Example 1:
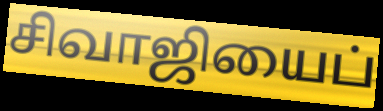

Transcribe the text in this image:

சிவாஜியைப்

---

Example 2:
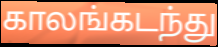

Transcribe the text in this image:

காலங்கடந்து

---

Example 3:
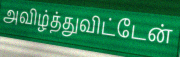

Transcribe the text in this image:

அவிழ்த்துவிட்டேன்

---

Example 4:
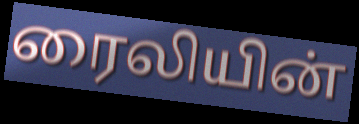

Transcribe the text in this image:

ரைலியின்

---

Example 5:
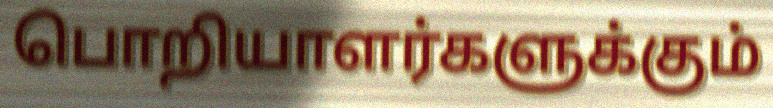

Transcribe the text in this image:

பொறியாளர்களுக்கும்